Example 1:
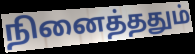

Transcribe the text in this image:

நினைத்ததும்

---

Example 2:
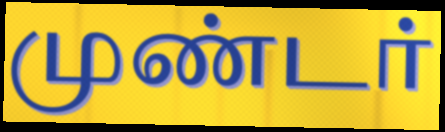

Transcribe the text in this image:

முண்டர்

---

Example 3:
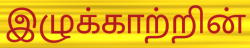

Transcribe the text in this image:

இழுக்காற்றின்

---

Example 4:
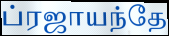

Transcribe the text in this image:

ப்ரஜாயந்தே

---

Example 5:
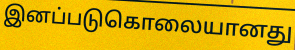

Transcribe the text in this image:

இனப்படுகொலையானது